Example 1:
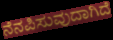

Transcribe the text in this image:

ನೆನಪಿಸುವುದಾಗಿದೆ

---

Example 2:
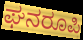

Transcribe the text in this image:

ಘನರೂಪಿ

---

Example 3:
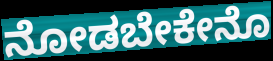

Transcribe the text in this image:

ನೋಡಬೇಕೇನೊ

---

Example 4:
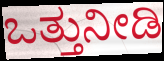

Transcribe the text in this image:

ಒತ್ತುನೀಡಿ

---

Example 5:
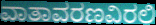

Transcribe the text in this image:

ವಾತಾವರಣವಿರಲಿ